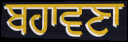
ਬਹਾਵਣਾ